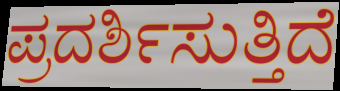
ಪ್ರದರ್ಶಿಸುತ್ತಿದೆ